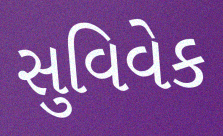
સુવિવેક